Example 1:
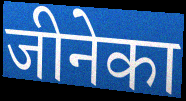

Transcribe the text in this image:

जीनेका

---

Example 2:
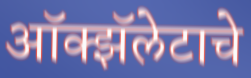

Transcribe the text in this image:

ऑक्झॅलेटाचे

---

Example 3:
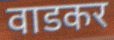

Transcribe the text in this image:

वाडकर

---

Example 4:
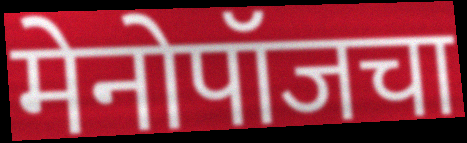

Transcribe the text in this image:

मेनोपॉजचा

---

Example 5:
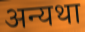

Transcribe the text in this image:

अन्यथा